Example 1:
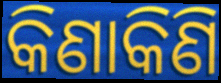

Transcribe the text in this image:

କିଣାକିଣି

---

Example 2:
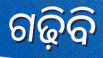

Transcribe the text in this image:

ଗଢ଼ିବି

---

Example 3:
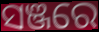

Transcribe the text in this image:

ସଞ୍ଜରେ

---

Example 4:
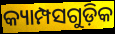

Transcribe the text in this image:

କ୍ୟାମ୍ପସଗୁଡ଼ିକ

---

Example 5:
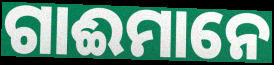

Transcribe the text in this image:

ଗାଈମାନେ